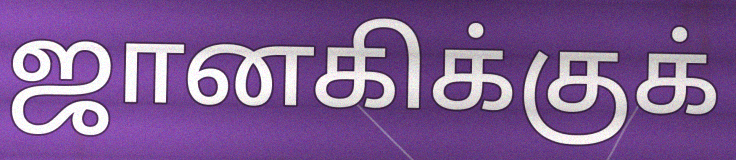
ஜானகிக்குக்